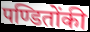
पण्डितोंकी